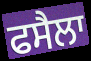
ਫਸੈਲਾ